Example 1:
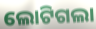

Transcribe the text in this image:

ଲୋଟିଗଲା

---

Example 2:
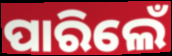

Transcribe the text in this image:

ପାରିଲେଁ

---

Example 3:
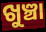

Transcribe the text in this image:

ଖୁଞ୍ଚା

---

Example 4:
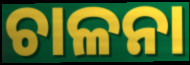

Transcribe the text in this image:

ଚାଳନା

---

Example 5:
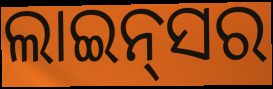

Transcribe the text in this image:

ଲାଇନ୍‌ସର